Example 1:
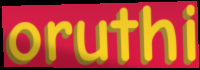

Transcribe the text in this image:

oruthi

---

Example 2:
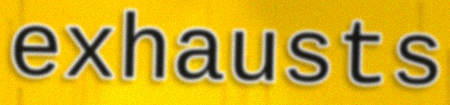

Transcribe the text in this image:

exhausts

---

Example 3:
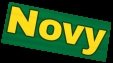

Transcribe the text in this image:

Novy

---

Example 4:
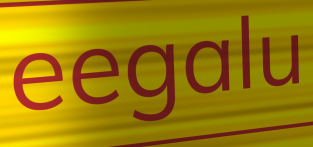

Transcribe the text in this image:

eegalu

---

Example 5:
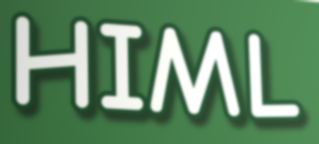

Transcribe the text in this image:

HIML